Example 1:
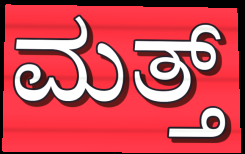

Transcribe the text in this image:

ಮತ್ತ್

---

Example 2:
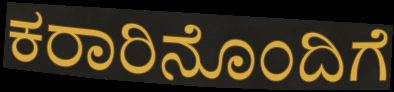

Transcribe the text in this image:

ಕರಾರಿನೊಂದಿಗೆ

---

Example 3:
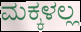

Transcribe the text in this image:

ಮಕ್ಕಳಲ್ಲ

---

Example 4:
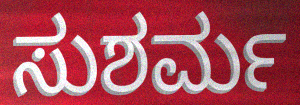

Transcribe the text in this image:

ಸುಶರ್ಮ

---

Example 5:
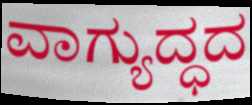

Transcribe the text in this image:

ವಾಗ್ಯುದ್ಧದ